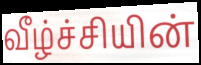
வீழ்ச்சியின்